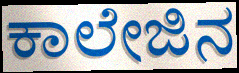
ಕಾಲೇಜಿನ